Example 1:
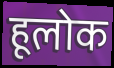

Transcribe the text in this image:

हूलोक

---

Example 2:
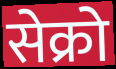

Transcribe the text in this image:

सेक्रो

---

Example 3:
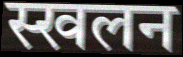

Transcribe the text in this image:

स्‍खलन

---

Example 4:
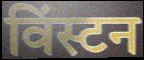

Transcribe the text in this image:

विंस्टन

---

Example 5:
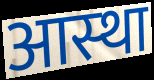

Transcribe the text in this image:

आस्‍था